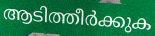
ആടിത്തീർക്കുക